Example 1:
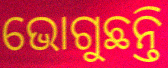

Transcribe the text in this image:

ଭୋଗୁଛନ୍ତି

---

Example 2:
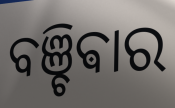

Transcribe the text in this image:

ବଞ୍ଚିଵାର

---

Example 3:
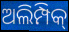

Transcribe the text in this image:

ଅଲିମ୍ପିକ୍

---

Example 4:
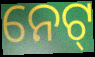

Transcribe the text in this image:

ନେଟ୍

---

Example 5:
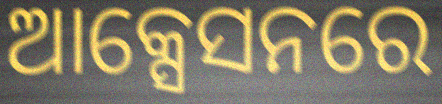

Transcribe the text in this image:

ଆକ୍ସେସନରେ